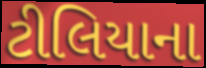
ટીલિયાના